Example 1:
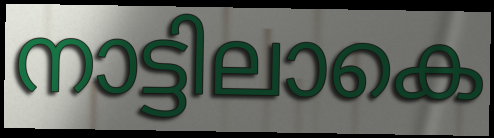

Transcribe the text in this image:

നാട്ടിലാകെ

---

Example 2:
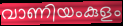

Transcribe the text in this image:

വാണിയംകുളം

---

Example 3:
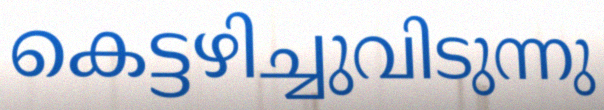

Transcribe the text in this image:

കെട്ടഴിച്ചുവിടുന്നു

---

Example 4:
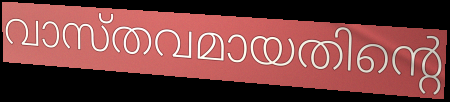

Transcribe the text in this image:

വാസ്തവമായതിന്റെ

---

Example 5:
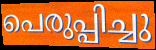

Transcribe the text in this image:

പെരുപ്പിച്ചു